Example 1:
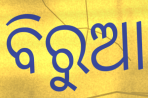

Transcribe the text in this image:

ବିରୁଆ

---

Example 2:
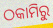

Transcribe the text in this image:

ଠକାମିରୁ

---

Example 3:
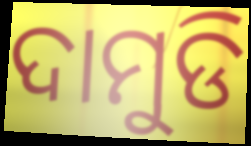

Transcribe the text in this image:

ଦାମୁଡି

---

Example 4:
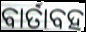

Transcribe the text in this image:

ବାର୍ତାବହ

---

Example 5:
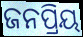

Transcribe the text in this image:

ଜନପ୍ରିୟ